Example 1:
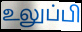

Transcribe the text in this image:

உலுப்பி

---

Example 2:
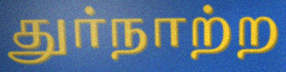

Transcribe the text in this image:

துர்நாற்ற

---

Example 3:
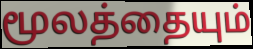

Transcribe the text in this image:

மூலத்தையும்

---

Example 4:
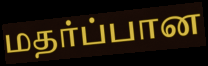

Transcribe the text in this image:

மதர்ப்பான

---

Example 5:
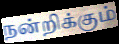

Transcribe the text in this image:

நன்றிக்கும்